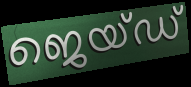
ജെയ്ഡ്